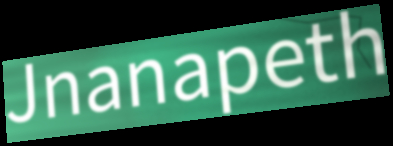
Jnanapeth